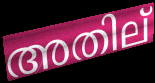
അതില്